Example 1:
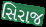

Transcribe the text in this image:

સિરાજ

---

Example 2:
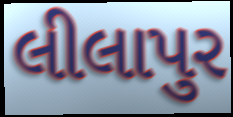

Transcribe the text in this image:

લીલાપુર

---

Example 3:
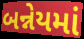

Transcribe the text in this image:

બન્નેયમાં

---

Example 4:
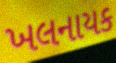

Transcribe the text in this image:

ખલનાયક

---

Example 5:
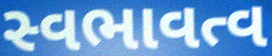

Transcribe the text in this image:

સ્વભાવત્વ